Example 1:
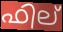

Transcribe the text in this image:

ഫില്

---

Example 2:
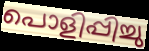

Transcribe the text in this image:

പൊളിപ്പിച്ചു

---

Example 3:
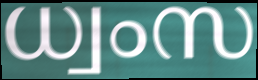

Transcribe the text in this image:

ധ്വംസ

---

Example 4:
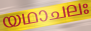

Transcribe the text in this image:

യഥാചലഃ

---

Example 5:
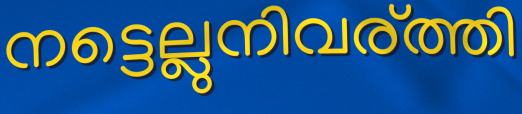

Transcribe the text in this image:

നട്ടെല്ലുനിവര്ത്തി